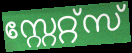
സ്റ്റേറ്റ്സ്